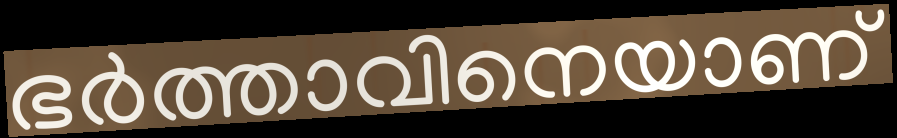
ഭർത്താവിനെയാണ്